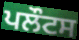
ਪਲੌਟਸ